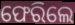
ଫେରିଲେ